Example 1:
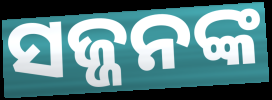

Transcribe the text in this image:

ସଜ୍ଜନଙ୍କ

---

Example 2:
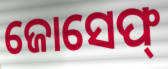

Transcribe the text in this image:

ଜୋସେଫ୍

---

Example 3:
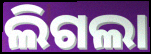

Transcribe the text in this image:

ଲିଗଲା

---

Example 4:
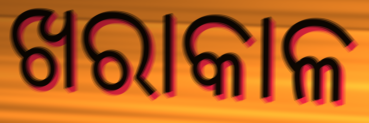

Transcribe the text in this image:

ଖରାକାଳ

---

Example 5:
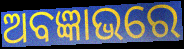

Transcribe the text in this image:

ଅବଜ୍ଞାଭରେ